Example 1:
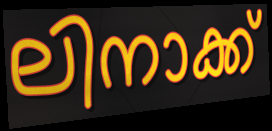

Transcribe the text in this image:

ലിനാക്ക്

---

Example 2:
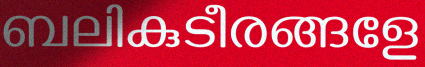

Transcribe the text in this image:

ബലികുടീരങ്ങളേ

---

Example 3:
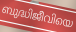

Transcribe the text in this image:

ബുദ്ധിജീവിയെ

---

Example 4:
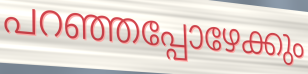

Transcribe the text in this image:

പറഞ്ഞപ്പോഴേക്കും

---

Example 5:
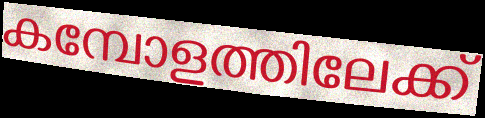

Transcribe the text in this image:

കമ്പോളത്തിലേക്ക്